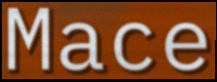
Mace